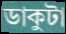
ডাকুটা